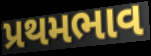
પ્રથમભાવ